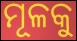
ମୂଳକୁ